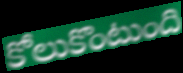
కోలుకొంటుంది